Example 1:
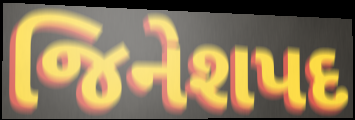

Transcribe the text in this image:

જિનેશપદ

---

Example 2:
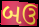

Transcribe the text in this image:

બઉ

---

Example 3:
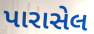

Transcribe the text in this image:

પારાસેલ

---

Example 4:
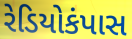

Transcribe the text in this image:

રેડિયોકંપાસ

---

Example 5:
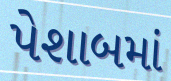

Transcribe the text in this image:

પેશાબમાં